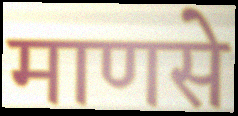
माणसे